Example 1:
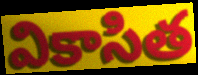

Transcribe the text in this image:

వికాసిత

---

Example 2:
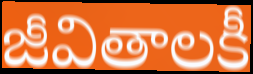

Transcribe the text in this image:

జీవితాలకీ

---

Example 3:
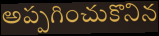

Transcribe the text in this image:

అప్పగించుకొనిన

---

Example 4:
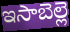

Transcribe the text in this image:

ఇసాబెల్లె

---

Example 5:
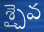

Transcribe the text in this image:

శ్చైవ